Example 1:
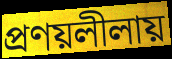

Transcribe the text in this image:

প্রণয়লীলায়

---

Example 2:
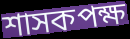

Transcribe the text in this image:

শাসকপক্ষ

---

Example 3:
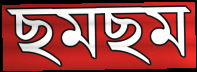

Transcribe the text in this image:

ছমছম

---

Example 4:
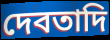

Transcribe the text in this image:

দেবতাদি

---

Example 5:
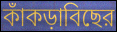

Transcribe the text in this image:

কাঁকড়াবিছের